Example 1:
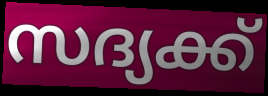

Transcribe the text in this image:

സദ്യക്ക്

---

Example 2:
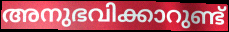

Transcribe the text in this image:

അനുഭവിക്കാറുണ്ട്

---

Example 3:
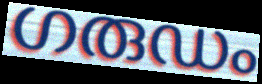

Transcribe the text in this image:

ഗരുഡം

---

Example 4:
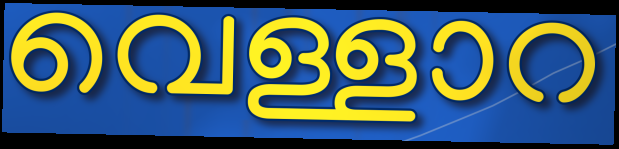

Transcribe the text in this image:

വെള്ളാറ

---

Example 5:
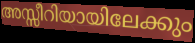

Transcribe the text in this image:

അസ്സീറിയായിലേക്കും